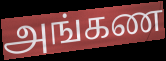
அங்கண